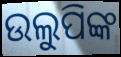
ଉଲୁପିଙ୍କ